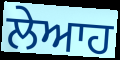
ਲੇਆਹ